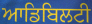
ਆਡਿਬਿਲਟੀ